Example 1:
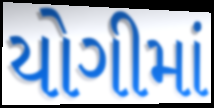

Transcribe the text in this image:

યોગીમાં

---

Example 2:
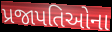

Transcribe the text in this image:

પ્રજાપતિઓના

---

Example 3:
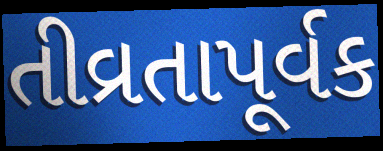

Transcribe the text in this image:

તીવ્રતાપૂર્વક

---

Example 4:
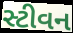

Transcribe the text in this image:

સ્ટીવન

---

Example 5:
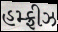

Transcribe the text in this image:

હમ્ફ્રીઝ